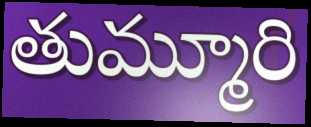
తుమ్మూరి